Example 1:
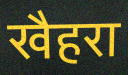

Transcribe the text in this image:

खैहरा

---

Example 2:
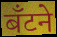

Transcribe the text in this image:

बँटने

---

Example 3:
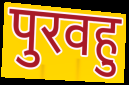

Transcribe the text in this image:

पुरवहु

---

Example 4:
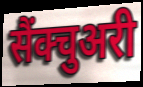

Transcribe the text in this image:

सैंक्चुअरी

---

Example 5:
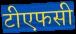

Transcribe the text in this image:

टीएफसी